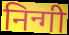
निन्गी